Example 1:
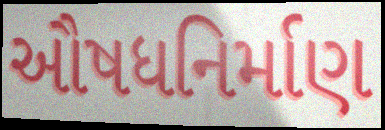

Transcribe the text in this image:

ઔષધનિર્માણ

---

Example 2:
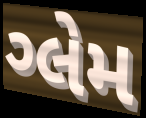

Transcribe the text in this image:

ગ્લેમ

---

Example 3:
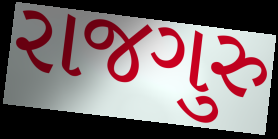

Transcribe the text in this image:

રાજગુરુ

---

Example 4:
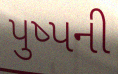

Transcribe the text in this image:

પુષ્પની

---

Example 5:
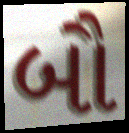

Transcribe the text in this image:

બૌ